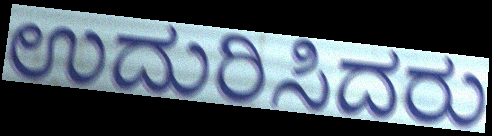
ಉದುರಿಸಿದರು